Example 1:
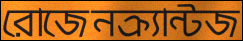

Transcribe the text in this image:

রোজেনক্র্যান্টজ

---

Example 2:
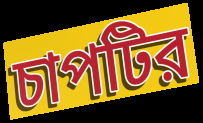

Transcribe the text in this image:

চাপটির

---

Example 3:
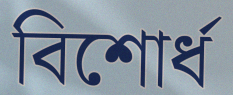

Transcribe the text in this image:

বিশোর্ধ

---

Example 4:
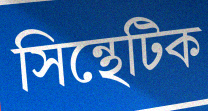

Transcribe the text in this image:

সিন্থেটিক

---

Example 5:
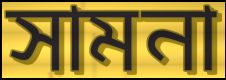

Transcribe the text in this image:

সামনা